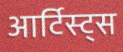
आर्टिस्ट्स